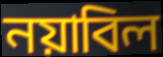
নয়াবিল